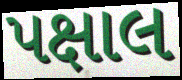
પક્ષાલ